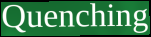
Quenching